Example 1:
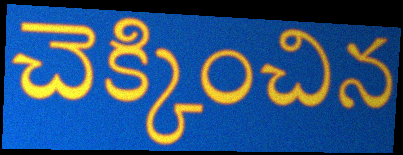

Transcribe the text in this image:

చెక్కించిన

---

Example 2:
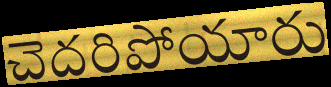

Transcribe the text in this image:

చెదరిపోయారు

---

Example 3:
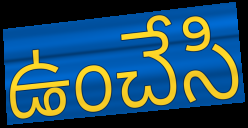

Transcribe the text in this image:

ఉంచేసి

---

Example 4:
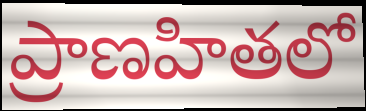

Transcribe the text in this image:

ప్రాణహితలో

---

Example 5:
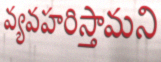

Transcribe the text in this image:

వ్యవహరిస్తామని